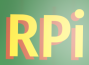
RPi